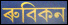
ৰুবিকন